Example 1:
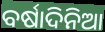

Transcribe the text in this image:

ବର୍ଷାଦିନିଆ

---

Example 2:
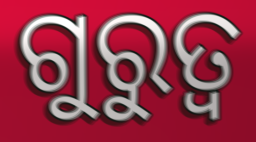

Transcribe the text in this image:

ଗୁରୁତ୍ୱ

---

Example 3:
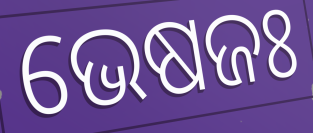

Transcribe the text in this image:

ଭେଷଜଃ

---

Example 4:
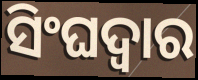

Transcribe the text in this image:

ସିଂଘଦ୍ୱାର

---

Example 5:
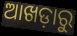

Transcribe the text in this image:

ଆଖଡ଼ାରୁ